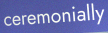
ceremonially